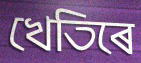
খেতিৰে